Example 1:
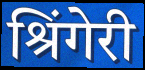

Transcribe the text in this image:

श्रिंगेरी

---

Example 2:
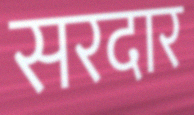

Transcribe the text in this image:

सरदार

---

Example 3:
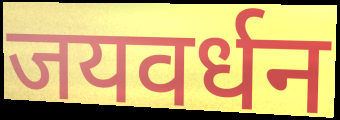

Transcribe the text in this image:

जयवर्धन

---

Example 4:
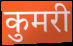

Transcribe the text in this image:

कुमरी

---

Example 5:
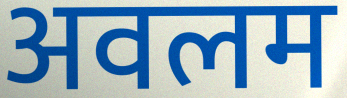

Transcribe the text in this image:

अवलम